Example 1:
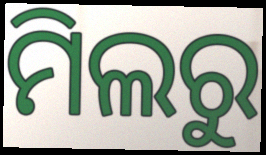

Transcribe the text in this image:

ମିଲରୁ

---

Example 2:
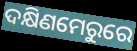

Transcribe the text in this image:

ଦକ୍ଷିଣମେରୁରେ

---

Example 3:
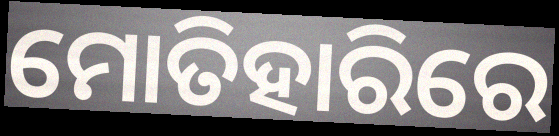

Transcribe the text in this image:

ମୋତିହାରିରେ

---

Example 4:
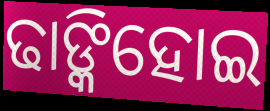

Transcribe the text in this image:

ଢାଙ୍କିହୋଇ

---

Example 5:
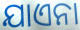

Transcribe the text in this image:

ଯାଏନା